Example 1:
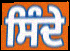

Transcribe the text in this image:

ਸਿੰਦੇ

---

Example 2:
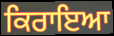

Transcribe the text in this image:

ਕਿਰਾਇਆ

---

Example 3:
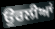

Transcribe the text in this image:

ਉਰਲੀਆਂ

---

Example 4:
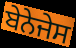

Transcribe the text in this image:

ਬੇਨੇਜੇਸ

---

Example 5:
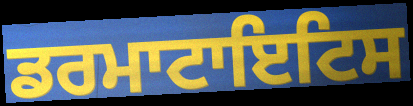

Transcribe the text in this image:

ਡਰਮਾਟਾਇਟਿਸ